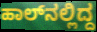
ಹಾಲ್‌ನಲ್ಲಿದ್ದ